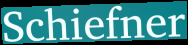
Schiefner